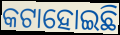
କଟାହୋଇଛି